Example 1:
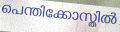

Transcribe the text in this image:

പെന്തിക്കോസ്തിൽ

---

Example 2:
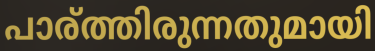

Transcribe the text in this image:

പാര്ത്തിരുന്നതുമായി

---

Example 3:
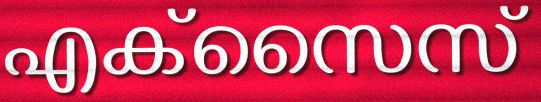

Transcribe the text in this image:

എക്‌സൈസ്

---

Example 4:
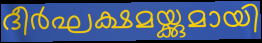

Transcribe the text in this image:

ദീർഘക്ഷമയ്ക്കുമായി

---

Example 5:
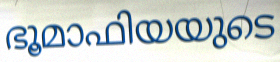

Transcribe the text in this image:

ഭൂമാഫിയയുടെ